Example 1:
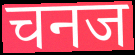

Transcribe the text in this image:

चनज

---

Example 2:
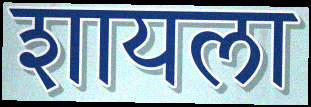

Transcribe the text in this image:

शायला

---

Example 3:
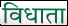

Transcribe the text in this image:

विधाता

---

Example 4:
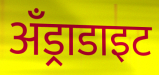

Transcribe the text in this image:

अँड्राडाइट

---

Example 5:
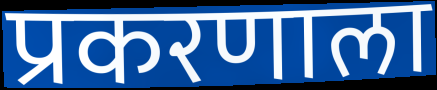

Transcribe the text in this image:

प्रकरणाला